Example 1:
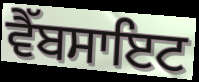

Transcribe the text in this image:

ਵੈੱਬਸਾਇਟ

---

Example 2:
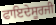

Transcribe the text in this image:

ਫਾਇਦੇਸੂਰਜੀ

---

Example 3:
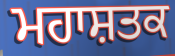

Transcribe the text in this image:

ਮਹਾਸ਼ਤਕ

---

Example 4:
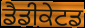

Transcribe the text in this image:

ਡੈਡੀਕੇਟਡ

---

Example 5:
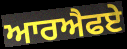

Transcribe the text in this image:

ਆਰਐਫਏ